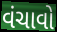
વંચાવો